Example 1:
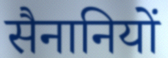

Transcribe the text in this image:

सैनानियों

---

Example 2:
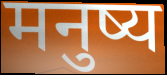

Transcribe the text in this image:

मनुष्‍य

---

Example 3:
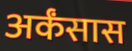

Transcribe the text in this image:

अर्कंसास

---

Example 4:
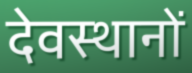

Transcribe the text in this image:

देवस्थानों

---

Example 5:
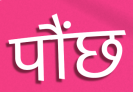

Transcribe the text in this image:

पौंछ